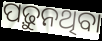
ପଢ଼ୁନଥିବା